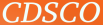
CDSCO